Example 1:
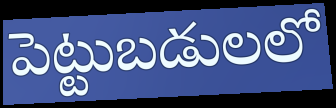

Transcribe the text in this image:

పెట్టుబడులలో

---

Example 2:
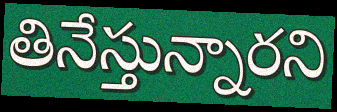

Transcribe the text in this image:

తినేస్తున్నారని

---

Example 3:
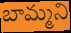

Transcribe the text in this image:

బామ్మని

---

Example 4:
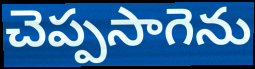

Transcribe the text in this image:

చెప్పసాగెను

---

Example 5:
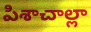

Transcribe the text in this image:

పిశాచాల్లా